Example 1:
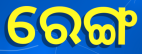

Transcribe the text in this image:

ରେଙ୍ଗ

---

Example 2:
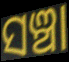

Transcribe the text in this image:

ସଞ୍ଚା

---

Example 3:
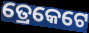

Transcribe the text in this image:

ତ୍ରେକେଟେ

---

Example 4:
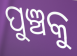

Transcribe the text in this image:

ପୁଞ୍ଚକୁ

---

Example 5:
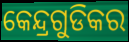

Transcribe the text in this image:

କେନ୍ଦ୍ରଗୁଡିକର